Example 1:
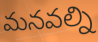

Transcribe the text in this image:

మనవల్ని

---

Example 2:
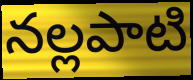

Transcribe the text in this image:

నల్లపాటి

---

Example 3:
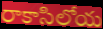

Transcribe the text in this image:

రాకాసిలోయ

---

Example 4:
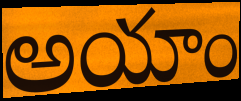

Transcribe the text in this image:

అయాం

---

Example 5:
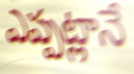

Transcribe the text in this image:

ఎప్పట్లానే